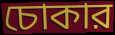
চোকার